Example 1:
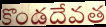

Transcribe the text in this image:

కొండదేవత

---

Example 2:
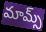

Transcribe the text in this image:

మామ్స్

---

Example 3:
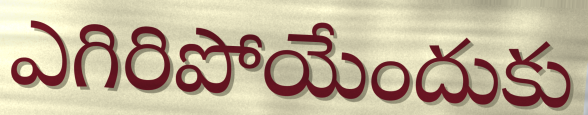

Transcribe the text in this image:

ఎగిరిపోయేందుకు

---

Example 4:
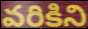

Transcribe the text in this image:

వరికిని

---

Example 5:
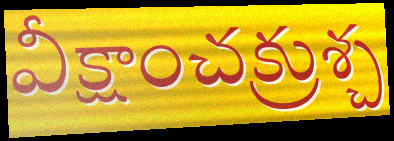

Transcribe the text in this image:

వీక్షాంచక్రుశ్చ